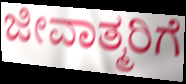
ಜೀವಾತ್ಮರಿಗೆ